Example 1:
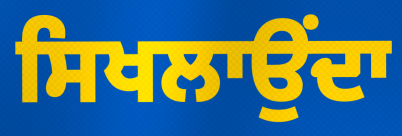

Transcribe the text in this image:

ਸਿਖਲਾਉਂਦਾ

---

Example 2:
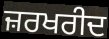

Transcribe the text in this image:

ਜ਼ਰਖਰੀਦ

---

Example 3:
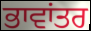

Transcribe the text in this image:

ਭਾਵਾਂਤਰ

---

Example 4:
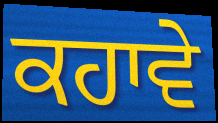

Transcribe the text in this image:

ਕਹਾਵੇ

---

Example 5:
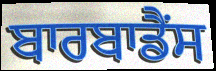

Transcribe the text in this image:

ਬਾਰਬਾਡੈਂਸ